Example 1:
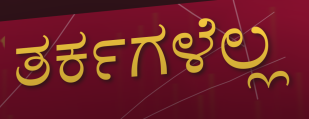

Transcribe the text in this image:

ತರ್ಕಗಳೆಲ್ಲ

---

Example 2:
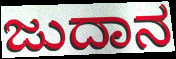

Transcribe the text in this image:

ಜುದಾನ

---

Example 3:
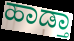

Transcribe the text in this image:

ಹಾಡ್ತಾ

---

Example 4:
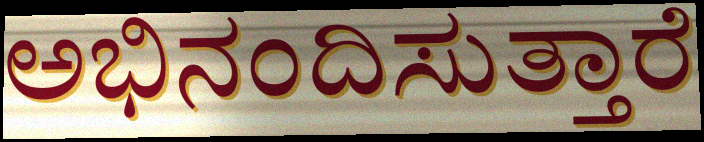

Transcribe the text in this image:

ಅಭಿನಂದಿಸುತ್ತಾರೆ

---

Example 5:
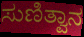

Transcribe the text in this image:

ಸುಣಿತ್ವಾನ